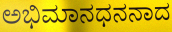
ಅಭಿಮಾನಧನನಾದ